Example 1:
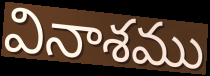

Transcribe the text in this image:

వినాశము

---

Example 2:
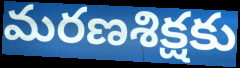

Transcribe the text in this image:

మరణశిక్షకు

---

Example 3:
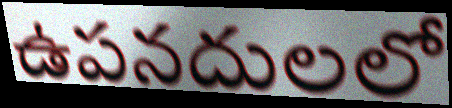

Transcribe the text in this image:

ఉపనదులలో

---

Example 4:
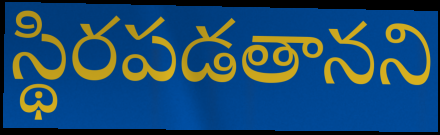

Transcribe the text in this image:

స్థిరపడతానని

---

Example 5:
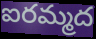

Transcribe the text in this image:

ఐరమ్మద